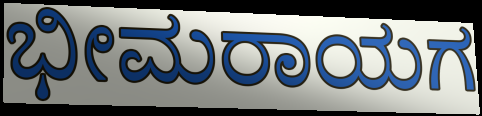
ಭೀಮರಾಯಗ